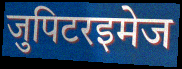
जुपिटरइमेज